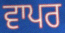
ਵਾਪਰ